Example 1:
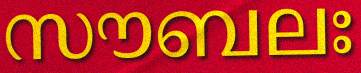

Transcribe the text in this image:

സൗബലഃ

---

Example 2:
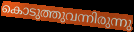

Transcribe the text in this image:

കൊടുത്തുവന്നിരുന്നു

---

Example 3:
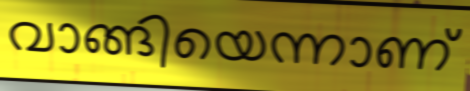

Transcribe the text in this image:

വാങ്ങിയെന്നാണ്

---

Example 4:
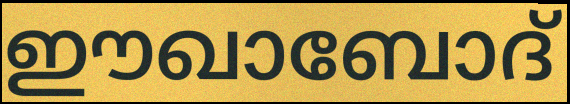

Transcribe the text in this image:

ഈഖാബോദ്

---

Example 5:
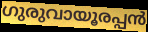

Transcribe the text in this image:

ഗുരുവായൂരപ്പൻ